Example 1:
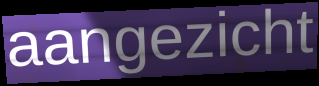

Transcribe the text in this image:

aangezicht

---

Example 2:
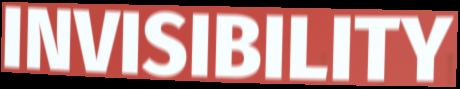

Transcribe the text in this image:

INVISIBILITY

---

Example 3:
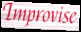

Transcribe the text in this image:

Improvise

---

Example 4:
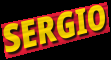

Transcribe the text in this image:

SERGIO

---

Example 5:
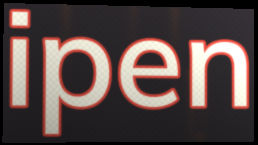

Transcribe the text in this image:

ipen